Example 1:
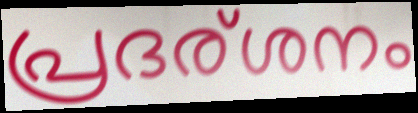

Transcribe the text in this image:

പ്രദര്ശനം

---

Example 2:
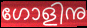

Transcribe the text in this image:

ഗോളിനു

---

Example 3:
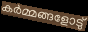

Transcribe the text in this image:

കർമ്മങ്ങളോടു്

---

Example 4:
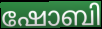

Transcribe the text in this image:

ഷോബി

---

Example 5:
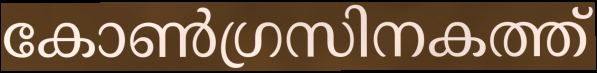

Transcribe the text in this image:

കോൺഗ്രസിനകത്ത്